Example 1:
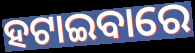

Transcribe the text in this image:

ହଟାଇବାରେ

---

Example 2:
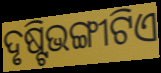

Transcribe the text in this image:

ଦୃଷ୍ଟିଭଙ୍ଗୀଟିଏ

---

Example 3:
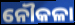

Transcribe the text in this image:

ନୌକଳା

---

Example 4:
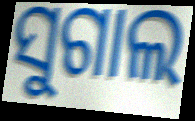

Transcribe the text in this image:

ସୁଗାଲ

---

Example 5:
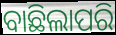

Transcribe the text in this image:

ବାଛିଲାପରି